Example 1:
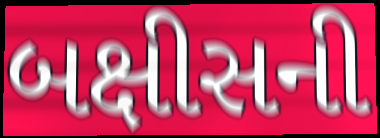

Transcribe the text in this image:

બક્ષીસની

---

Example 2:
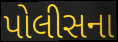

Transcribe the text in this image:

પોલીસના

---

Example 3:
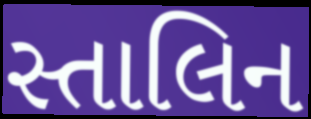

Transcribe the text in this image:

સ્તાલિન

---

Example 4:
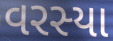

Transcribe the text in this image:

વરસ્યા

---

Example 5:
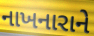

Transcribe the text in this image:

નાખનારાને